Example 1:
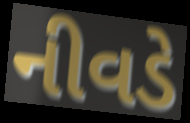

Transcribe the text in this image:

નીવડે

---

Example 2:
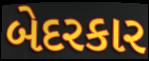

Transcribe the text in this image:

બેદરકાર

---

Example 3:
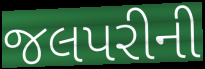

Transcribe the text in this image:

જલપરીની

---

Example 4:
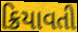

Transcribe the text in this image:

ક્રિયાવતી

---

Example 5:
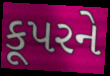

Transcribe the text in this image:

કૂપરને